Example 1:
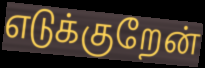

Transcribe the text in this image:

எடுக்குறேன்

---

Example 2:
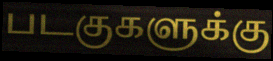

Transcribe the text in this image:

படகுகளுக்கு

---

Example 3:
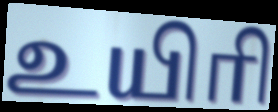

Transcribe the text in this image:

உயிரி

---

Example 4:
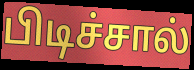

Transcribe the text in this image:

பிடிச்சால்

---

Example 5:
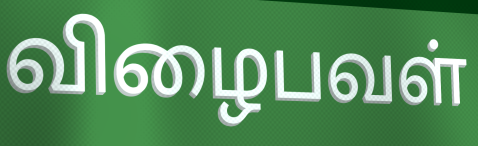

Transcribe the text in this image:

விழைபவள்